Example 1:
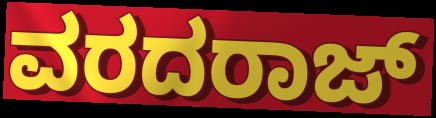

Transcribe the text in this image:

ವರದರಾಜ್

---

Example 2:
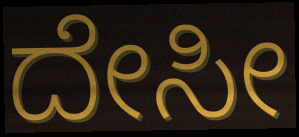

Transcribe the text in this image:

ದೇಸೀ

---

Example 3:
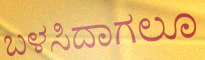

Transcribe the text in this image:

ಬಳಸಿದಾಗಲೂ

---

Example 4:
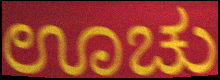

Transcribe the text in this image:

ಊಚು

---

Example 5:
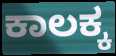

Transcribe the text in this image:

ಕಾಲಕ್ಕ